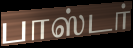
பாஸ்டர்